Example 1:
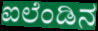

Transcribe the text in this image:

ಐಲೆಂಡಿನ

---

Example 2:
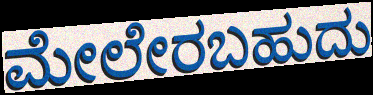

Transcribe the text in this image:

ಮೇಲೇರಬಹುದು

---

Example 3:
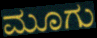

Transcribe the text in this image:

ಮೂಗು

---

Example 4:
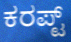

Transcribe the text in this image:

ಕರಪ್ಟ್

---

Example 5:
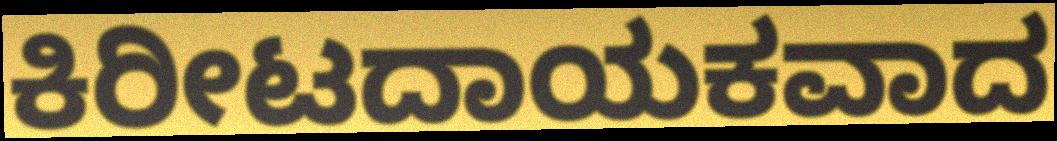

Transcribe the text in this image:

ಕಿರೀಟದಾಯಕವಾದ